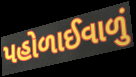
પહોળાઈવાળું